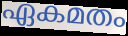
ഏകമതം